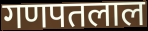
गणपतलाल